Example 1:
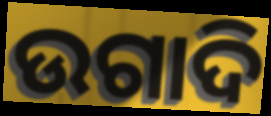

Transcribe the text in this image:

ଉଗାଦି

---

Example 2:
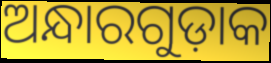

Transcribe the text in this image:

ଅନ୍ଧାରଗୁଡ଼ାକ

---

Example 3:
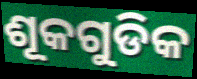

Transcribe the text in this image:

ଶୂକଗୁଡିକ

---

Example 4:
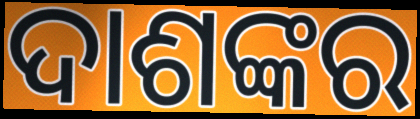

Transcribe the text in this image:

ଦାଶଙ୍କର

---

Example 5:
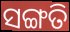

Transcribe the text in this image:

ସଙ୍ଗତି